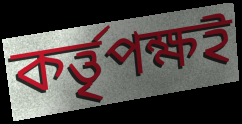
কৰ্ত্তৃপক্ষই